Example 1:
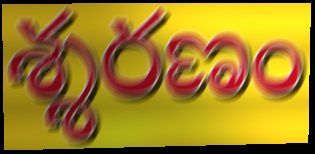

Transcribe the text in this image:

శ్శరణం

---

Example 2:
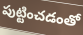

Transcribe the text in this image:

పుట్టించడంతో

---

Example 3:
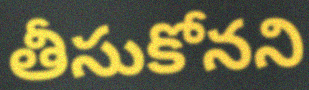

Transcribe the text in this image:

తీసుకోనని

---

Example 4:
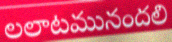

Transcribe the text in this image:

లలాటమునందలి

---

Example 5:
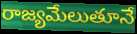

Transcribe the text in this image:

రాజ్యమేలుతూనే